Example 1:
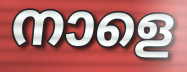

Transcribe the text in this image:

നാളെ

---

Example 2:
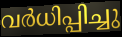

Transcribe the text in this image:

വർധിപ്പിച്ചു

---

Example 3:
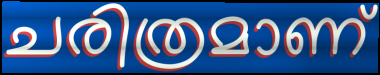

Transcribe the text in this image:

ചരിത്രമാണ്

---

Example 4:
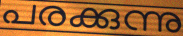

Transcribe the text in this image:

പരക്കുന്നു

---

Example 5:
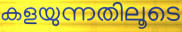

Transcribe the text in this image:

കളയുന്നതിലൂടെ